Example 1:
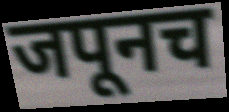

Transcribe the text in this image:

जपूनच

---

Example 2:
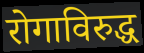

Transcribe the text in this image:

रोगाविरुद्ध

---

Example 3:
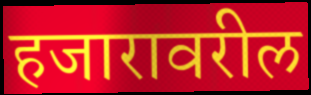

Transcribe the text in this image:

हजारावरील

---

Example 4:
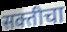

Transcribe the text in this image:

सक्‍तीचा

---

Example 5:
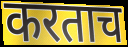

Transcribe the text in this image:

करताच